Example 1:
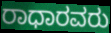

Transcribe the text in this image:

ರಾಧಾರವರು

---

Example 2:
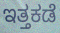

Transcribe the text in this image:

ಇತ್ತಕಡೆ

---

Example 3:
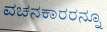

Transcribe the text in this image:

ವಚನಕಾರರನ್ನೂ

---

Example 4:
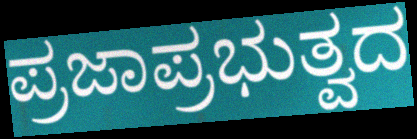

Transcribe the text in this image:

ಪ್ರಜಾಪ್ರಭುತ್ವದ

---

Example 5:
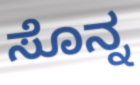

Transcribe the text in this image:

ಸೊನ್ನ